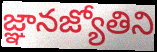
జ్ఞానజ్యోతిని